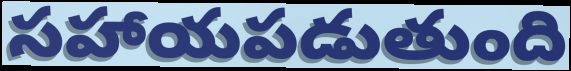
సహాయపడుతుంది